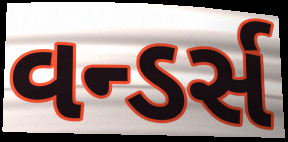
વન્ડર્સ